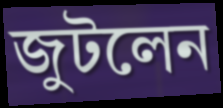
জুটলেন